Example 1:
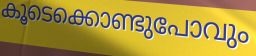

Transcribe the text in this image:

കൂടെക്കൊണ്ടുപോവും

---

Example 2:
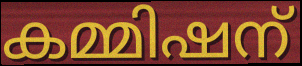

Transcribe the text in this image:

കമ്മിഷന്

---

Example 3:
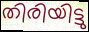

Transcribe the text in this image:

തിരിയിട്ടു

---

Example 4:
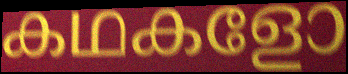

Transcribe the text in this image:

കഥകളോ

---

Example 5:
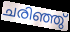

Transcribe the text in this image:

ചരിഞ്ഞു്